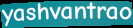
yashvantrao